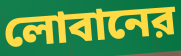
লোবানের